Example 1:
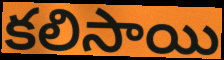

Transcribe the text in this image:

కలిసాయి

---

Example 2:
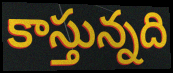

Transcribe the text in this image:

కాస్తున్నది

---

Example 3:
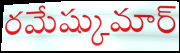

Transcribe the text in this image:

రమేష్కుమార్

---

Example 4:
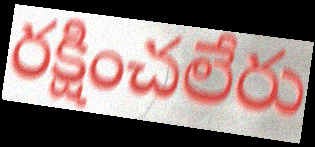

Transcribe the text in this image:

రక్షించలేరు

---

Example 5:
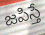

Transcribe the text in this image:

జపిస్తే